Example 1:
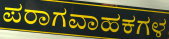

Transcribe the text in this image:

ಪರಾಗವಾಹಕಗಳ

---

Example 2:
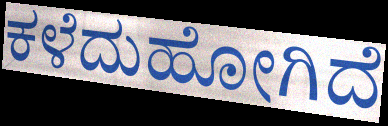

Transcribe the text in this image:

ಕಳೆದುಹೋಗಿದೆ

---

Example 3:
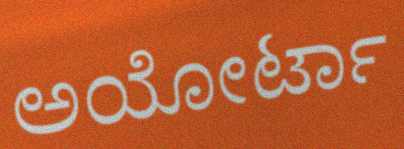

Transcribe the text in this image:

ಅಯೋರ್ಟಾ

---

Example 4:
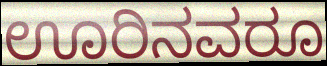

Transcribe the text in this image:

ಊರಿನವರೂ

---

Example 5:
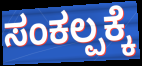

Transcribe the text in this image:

ಸಂಕಲ್ಪಕ್ಕೆ